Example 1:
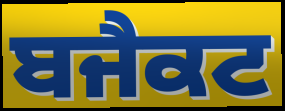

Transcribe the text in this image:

ਬਜੈਕਟ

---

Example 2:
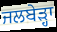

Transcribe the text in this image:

ਜਲਬੇੜ੍ਹਾ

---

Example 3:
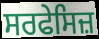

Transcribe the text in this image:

ਸਰਫੇਸਿਜ਼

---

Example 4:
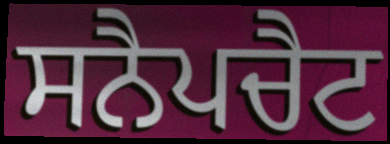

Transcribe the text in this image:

ਸਨੈਪਚੈਟ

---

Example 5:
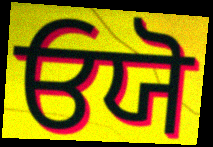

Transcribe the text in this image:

ਓਯੋ